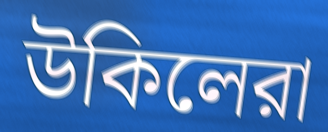
উকিলেরা